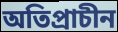
অতিপ্রাচীন